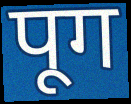
पूग